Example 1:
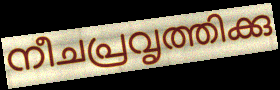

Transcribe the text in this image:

നീചപ്രവൃത്തിക്കു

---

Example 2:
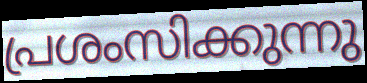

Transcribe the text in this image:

പ്രശംസിക്കുന്നു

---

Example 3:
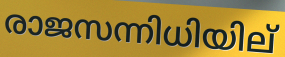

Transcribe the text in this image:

രാജസന്നിധിയില്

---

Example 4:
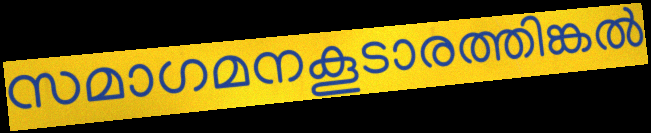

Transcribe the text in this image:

സമാഗമനകൂടാരത്തിങ്കൽ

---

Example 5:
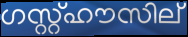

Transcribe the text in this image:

ഗസ്റ്റ്ഹൗസില്